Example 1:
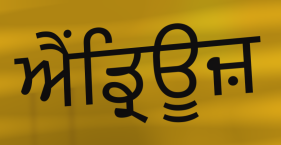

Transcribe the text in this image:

ਐਂਡ੍ਰਿਊਜ਼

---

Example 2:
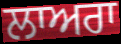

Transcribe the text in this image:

ਲਾਅਰਾ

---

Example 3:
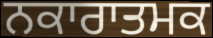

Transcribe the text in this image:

ਨਕਾਰਾਤਮਕ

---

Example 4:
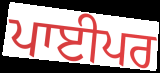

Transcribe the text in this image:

ਪਾਈਪਰ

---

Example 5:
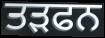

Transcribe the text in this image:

ਤੜਫਨ